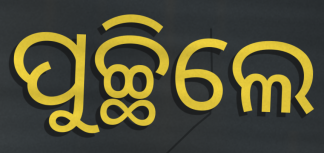
ପୁଚ୍ଛିଲେ